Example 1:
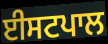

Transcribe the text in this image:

ਈਸਟਪਾਲ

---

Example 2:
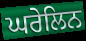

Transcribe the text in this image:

ਘਰੇਲਿਨ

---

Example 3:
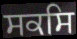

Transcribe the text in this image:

ਸਕਸਿ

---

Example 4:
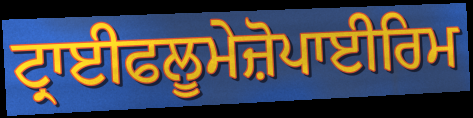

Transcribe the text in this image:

ਟ੍ਰਾਈਫਲੂਮੇਜ਼ੋਪਾਈਰਿਮ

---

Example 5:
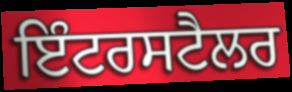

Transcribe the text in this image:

ਇੰਟਰਸਟੈਲਰ